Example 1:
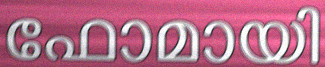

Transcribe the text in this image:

ഫോമായി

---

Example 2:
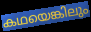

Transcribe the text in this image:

കഥയെങ്കിലും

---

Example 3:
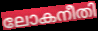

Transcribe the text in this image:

ലോകനീതി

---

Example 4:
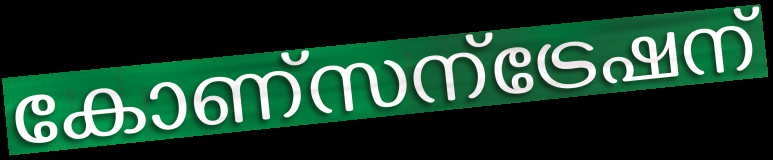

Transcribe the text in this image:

കോണ്സന്ട്രേഷന്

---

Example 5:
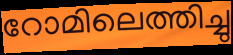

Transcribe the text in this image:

റോമിലെത്തിച്ചു